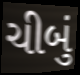
ચીબું